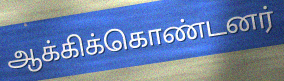
ஆக்கிக்கொண்டனர்